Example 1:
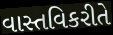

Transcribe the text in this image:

વાસ્તવિકરીતે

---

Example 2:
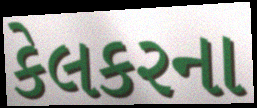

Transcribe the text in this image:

કેલકરના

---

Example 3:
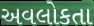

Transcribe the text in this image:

અવલોકતા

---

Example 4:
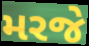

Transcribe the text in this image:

મરજે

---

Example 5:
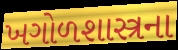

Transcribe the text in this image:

ખગોળશાસ્ત્રના